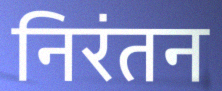
निरंतन